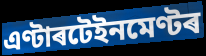
এণ্টাৰটেইনমেণ্টৰ